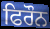
ਫਿਰੌਨ